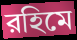
রহিমে